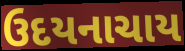
ઉદયનાચાય